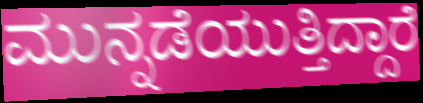
ಮುನ್ನಡೆಯುತ್ತಿದ್ದಾರೆ